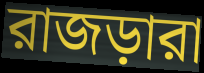
রাজড়ারা